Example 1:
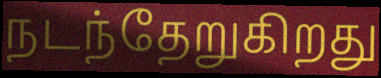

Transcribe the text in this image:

நடந்தேறுகிறது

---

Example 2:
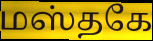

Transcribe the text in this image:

மஸ்தகே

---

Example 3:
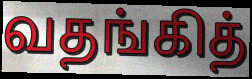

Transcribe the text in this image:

வதங்கித்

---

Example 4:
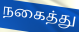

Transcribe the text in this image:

நகைத்து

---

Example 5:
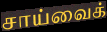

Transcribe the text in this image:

சாய்வைக்